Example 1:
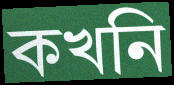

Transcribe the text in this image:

কখনি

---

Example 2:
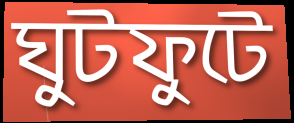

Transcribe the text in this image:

ঘুটফুটে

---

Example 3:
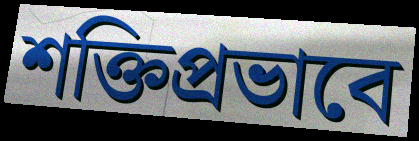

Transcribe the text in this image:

শক্তিপ্রভাবে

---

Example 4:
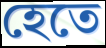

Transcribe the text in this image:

হেতে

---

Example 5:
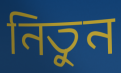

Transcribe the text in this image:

নিতুন